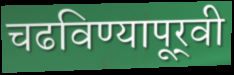
चढविण्यापूर्वी